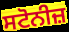
ਸਟੋਨੀਜ਼